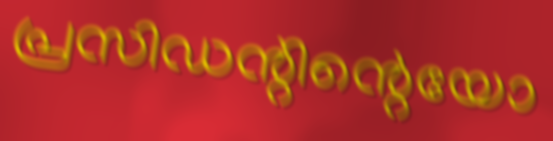
പ്രസിഡന്റിന്റെയോ